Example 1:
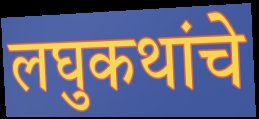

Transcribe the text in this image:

लघुकथांचे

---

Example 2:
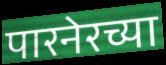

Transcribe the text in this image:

पारनेरच्या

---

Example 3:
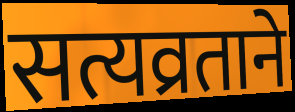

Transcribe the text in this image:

सत्यव्रताने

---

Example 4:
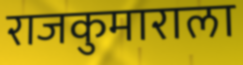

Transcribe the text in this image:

राजकुमाराला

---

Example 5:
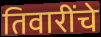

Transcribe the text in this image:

तिवारींचे